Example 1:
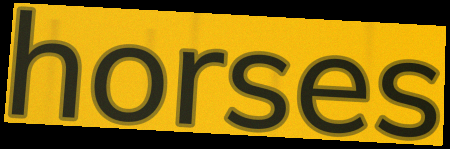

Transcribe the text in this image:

horses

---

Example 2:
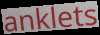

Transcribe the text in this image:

anklets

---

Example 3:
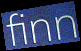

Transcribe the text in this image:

finn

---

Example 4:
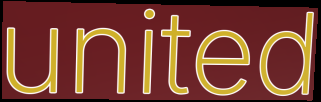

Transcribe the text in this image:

united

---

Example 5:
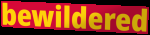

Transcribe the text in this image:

bewildered